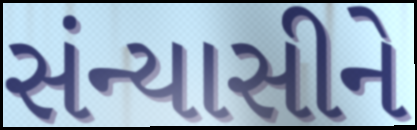
સંન્યાસીને